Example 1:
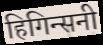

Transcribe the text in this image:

हिगिन्सनी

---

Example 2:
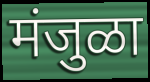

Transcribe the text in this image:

मंजुळा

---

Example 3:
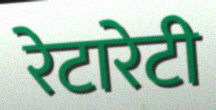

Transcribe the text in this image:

रेटारेटी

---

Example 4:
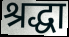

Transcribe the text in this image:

श्रद्धा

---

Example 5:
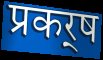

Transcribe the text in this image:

प्रकर्ष